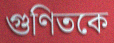
গুণিতকে